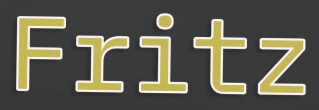
Fritz